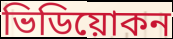
ভিডিয়োকন